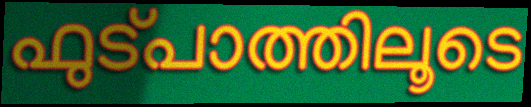
ഫുട്പാത്തിലൂടെ